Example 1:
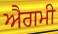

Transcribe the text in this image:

ਐਗਮੀ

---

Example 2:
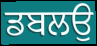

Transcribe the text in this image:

ਡਬਲਉ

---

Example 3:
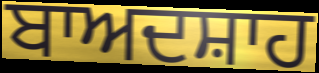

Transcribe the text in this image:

ਬਾਅਦਸ਼ਾਹ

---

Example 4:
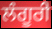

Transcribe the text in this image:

ਲੰਗੂਰੀ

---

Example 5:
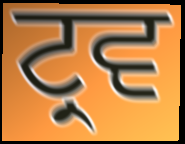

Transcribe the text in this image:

ਟ੍ਰਵ